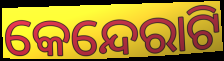
କେନ୍ଦେରାଟି